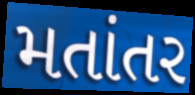
મતાંતર